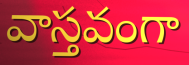
వాస్తవంగా